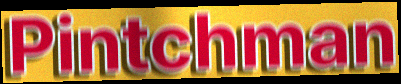
Pintchman